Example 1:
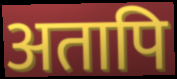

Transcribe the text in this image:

अतापि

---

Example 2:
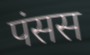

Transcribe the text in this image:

पंसस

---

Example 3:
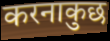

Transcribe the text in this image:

करनाकुछ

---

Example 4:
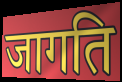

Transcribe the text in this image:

जागति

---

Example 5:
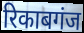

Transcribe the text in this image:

रिकाबगंज